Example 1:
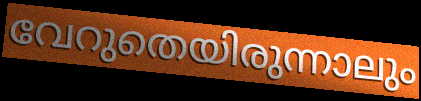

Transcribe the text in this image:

വേറുതെയിരുന്നാലും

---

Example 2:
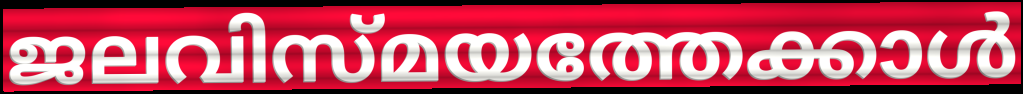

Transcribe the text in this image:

ജലവിസ്മയത്തേക്കാൾ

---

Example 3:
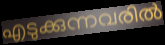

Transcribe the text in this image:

എടുക്കുന്നവരിൽ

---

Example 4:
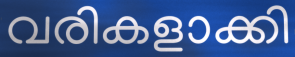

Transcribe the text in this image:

വരികളാക്കി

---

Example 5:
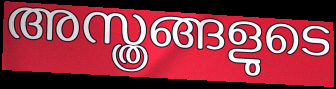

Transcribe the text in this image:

അസ്ത്രങ്ങളുടെ